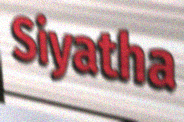
Siyatha